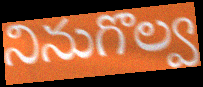
నినుగొల్వ